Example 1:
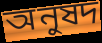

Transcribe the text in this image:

অনুষদ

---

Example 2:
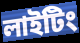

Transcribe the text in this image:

লাইটিং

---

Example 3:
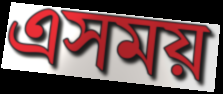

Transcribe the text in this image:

এসময়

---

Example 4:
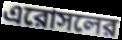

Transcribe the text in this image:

এরোসলের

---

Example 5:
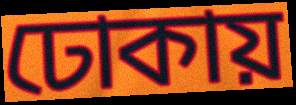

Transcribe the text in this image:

ঢোকায়